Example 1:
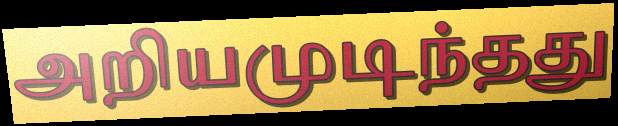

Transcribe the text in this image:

அறியமுடிந்தது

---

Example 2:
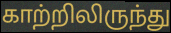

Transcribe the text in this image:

காற்றிலிருந்து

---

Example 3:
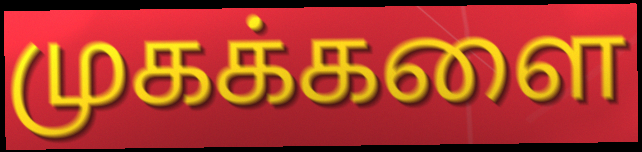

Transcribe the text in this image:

முகக்களை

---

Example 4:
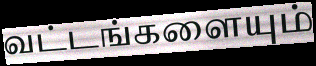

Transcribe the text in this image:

வட்டங்களையும்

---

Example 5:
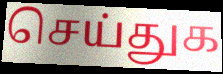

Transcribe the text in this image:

செய்துக